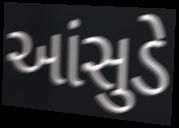
આંસુડે